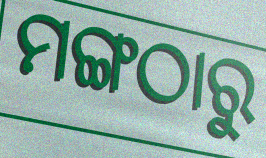
ମଙ୍ଗଠାରୁ